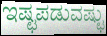
ಇಷ್ಟಪಡುವಷ್ಟು